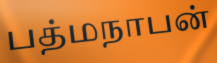
பத்மநாபன்